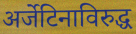
अर्जेटिनाविरुद्ध